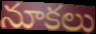
నూకలు